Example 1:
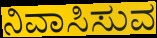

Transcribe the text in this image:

ನಿವಾಸಿಸುವ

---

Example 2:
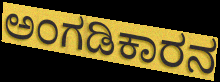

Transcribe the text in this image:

ಅಂಗಡಿಕಾರನ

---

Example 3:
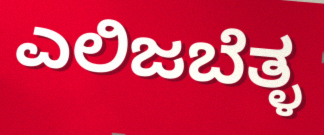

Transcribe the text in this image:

ಎಲಿಜಬೆತ್ಳ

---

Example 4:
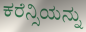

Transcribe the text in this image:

ಕರೆನ್ಸಿಯನ್ನು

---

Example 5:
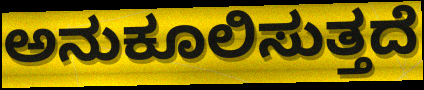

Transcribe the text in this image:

ಅನುಕೂಲಿಸುತ್ತದೆ